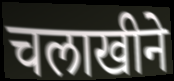
चलाखीने